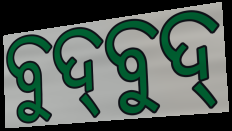
ବୁଦ୍‍ବୁଦ୍